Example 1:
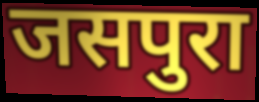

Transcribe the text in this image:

जसपुरा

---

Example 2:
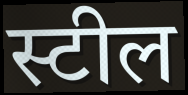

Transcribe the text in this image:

स्‍टील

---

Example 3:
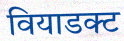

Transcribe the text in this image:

वियाडक्ट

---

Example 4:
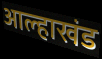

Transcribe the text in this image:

आल्हाखंड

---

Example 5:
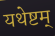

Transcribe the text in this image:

यथेष्टम्